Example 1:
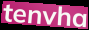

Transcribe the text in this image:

tenvha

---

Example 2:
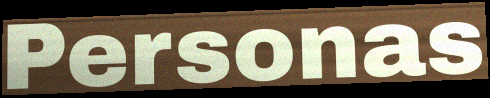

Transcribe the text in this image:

Personas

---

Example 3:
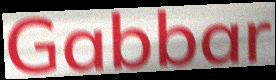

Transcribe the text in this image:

Gabbar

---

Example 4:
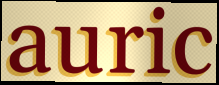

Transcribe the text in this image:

auric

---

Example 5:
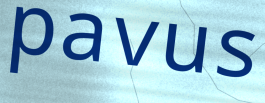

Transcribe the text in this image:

pavus